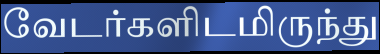
வேடர்களிடமிருந்து